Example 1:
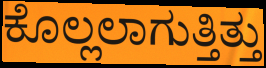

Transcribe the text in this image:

ಕೊಲ್ಲಲಾಗುತ್ತಿತ್ತು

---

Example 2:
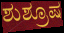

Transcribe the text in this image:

ಶುಶ್ರೂಷ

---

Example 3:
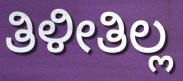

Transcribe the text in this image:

ತಿಳೀತಿಲ್ಲ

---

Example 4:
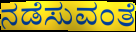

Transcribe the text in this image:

ನಡೆಸುವಂತೆ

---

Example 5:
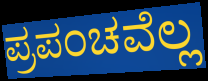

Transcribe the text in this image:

ಪ್ರಪಂಚವೆಲ್ಲ